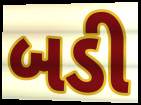
બડી